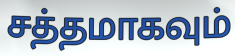
சத்தமாகவும்